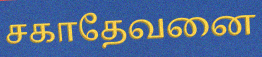
சகாதேவனை